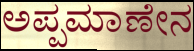
ಅಪ್ಪಮಾಣೇನ